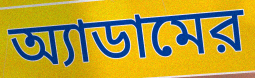
অ্যাডামের